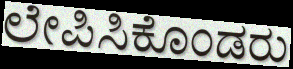
ಲೇಪಿಸಿಕೊಂಡರು